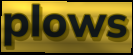
plows